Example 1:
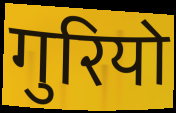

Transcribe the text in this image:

गुरियो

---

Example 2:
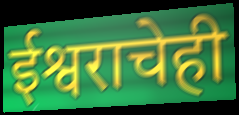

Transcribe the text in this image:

ईश्वराचेही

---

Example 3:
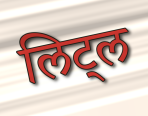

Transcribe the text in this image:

लिट्ल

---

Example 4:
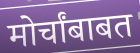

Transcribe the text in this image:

मोर्चांबाबत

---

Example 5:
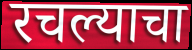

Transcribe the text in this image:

रचल्याचा